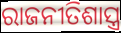
ରାଜନୀତିଶାସ୍ତ୍ର